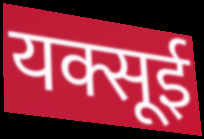
यक्सूई